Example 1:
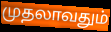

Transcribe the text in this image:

முதலாவதும்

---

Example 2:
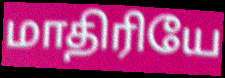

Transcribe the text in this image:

மாதிரியே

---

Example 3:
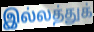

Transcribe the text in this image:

இல்லத்துக்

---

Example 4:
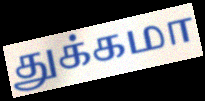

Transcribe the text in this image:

துக்கமா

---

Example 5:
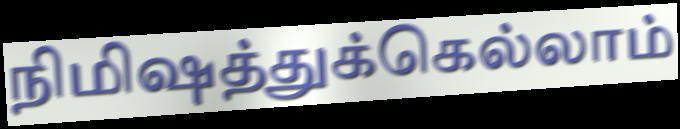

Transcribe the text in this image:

நிமிஷத்துக்கெல்லாம்